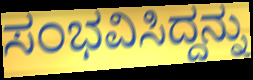
ಸಂಭವಿಸಿದ್ದನ್ನು